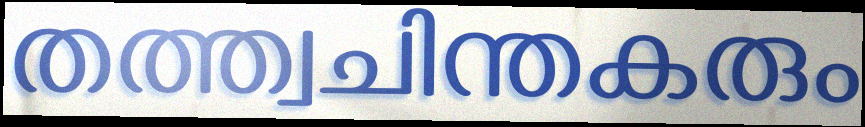
തത്ത്വചിന്തകരും